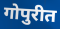
गोपुरीत